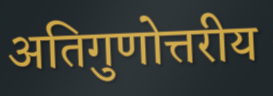
अतिगुणोत्तरीय